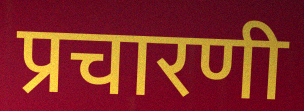
प्रचारणी